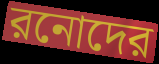
রনোদের